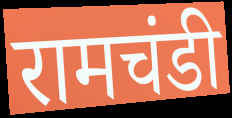
रामचंडी